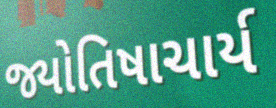
જ્યોતિષાચાર્ય